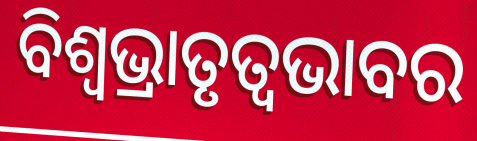
ବିଶ୍ଵଭ୍ରାତୃତ୍ୱଭାବର